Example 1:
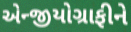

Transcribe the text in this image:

એન્જીયોગ્રાફીને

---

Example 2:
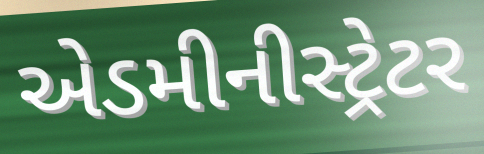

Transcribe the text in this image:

એડમીનીસ્ટ્રેટર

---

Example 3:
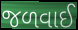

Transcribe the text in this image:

જળવાઈ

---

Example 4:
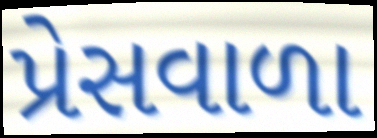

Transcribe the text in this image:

પ્રેસવાળા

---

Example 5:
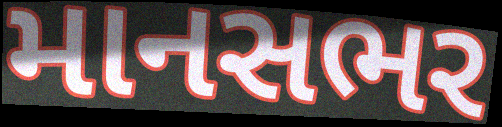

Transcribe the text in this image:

માનસભર